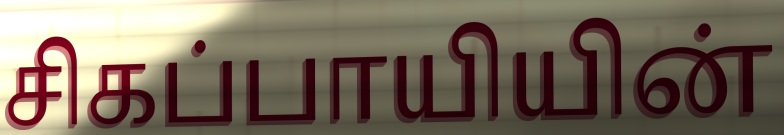
சிகப்பாயியின்